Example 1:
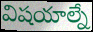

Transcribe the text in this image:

విషయాల్నే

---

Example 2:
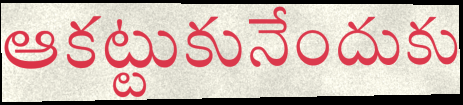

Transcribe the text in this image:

ఆకట్టుకునేందుకు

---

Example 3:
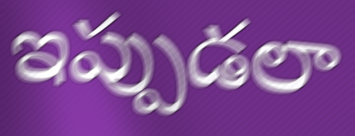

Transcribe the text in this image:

ఇప్పుడలా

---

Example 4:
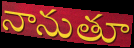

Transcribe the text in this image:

నానుతూ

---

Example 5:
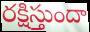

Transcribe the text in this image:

రక్షిస్తుందా